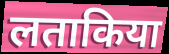
लताकिया